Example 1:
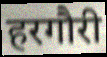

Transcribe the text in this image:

हरगौरी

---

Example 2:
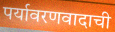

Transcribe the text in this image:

पर्यावरणवादाची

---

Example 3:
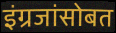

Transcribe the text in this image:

इंग्रजांसोबत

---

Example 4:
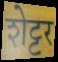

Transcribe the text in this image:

शेट्टर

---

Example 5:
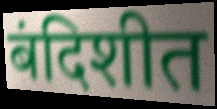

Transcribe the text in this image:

बंदिशीत